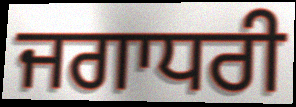
ਜਗਾਧਰੀ